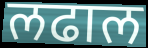
लढाल